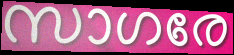
സാഗരേ